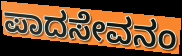
ಪಾದಸೇವನಂ